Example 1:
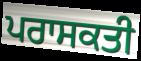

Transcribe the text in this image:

ਪਰਾਸਕਤੀ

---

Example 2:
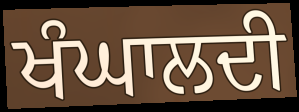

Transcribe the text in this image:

ਖੰਘਾਲਦੀ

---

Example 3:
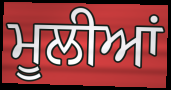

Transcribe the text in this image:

ਮੂਲੀਆਂ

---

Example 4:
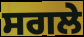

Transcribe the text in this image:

ਸਗਲੇ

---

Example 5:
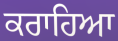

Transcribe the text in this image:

ਕਰਾਹਿਆ